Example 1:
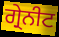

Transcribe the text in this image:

ਗ੍ਰੇਨੀਟ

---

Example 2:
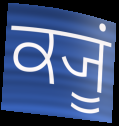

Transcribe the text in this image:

ਕ੍ਯੂਂ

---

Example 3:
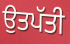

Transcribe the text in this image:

ਉਤਪੱਤੀ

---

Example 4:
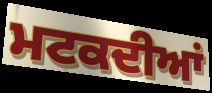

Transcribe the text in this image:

ਮਟਕਦੀਆਂ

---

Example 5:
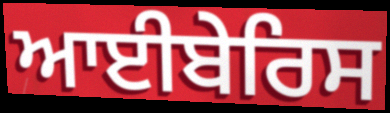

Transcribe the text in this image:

ਆਈਬੇਰਿਸ